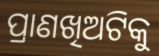
ପ୍ରାଣଖିଅଟିକୁ